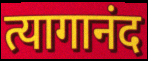
त्यागानंद